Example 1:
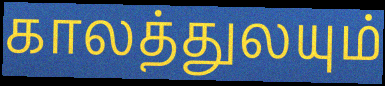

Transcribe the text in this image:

காலத்துலயும்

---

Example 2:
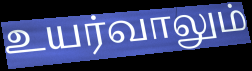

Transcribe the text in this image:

உயர்வாலும்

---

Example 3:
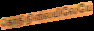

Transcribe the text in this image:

கொதிநிலையிலேயே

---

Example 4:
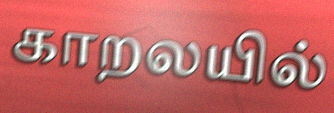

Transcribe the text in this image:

காறலயில்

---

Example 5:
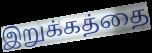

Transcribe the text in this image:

இறுக்கத்தை